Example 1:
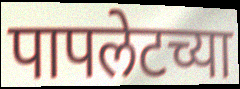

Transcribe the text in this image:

पापलेटच्या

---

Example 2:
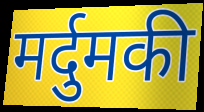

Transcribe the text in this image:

मर्दुमकी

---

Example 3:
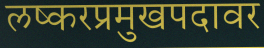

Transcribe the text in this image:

लष्करप्रमुखपदावर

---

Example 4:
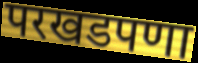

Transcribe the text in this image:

परखडपणा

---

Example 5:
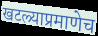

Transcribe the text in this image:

खटल्याप्रमाणेच